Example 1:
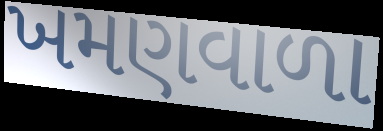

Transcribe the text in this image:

ખમણવાળા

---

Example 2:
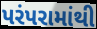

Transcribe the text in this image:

પરંપરામાંથી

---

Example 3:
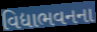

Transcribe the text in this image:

વિદ્યાભવનના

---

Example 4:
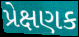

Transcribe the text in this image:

પ્રેક્ષણક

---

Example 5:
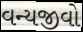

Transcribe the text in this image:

વન્યજીવો